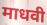
माधवी